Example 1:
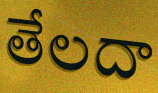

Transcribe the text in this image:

తేలదా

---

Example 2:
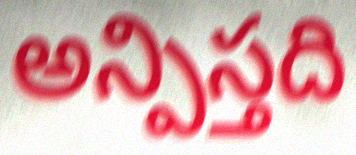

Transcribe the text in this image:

అన్పిస్తది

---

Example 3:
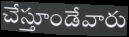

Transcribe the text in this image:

చేస్తూండేవారు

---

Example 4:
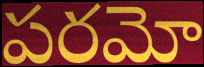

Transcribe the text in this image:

పరమో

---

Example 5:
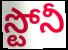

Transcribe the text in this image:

స్టోనీ